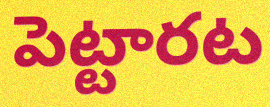
పెట్టారట